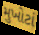
મુખોટાં